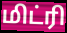
மிட்ரி